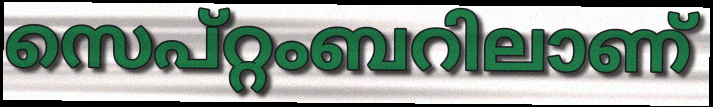
സെപ്റ്റംബറിലാണ്